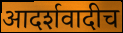
आदर्शवादीच